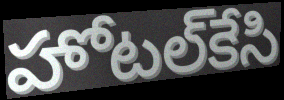
హోటల్‌కేసి